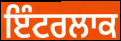
ਇੰਟਰਲਾਕ